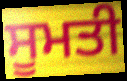
ਸੂਮਤੀ